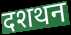
दशथन